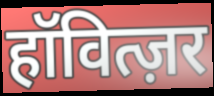
हॉवित्ज़र